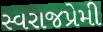
સ્વરાજપ્રેમી